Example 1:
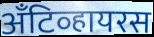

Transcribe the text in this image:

अँटिव्हायरस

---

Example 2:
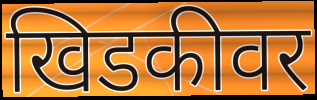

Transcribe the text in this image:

खिडकीवर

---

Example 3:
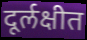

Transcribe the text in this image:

दूर्लक्षीत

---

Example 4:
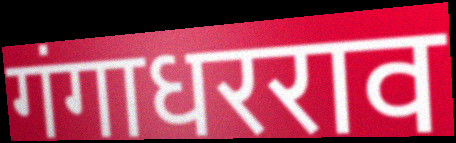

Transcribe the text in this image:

गंगाधरराव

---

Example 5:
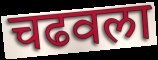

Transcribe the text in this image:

चढवला